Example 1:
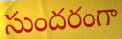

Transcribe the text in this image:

సుందరంగా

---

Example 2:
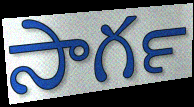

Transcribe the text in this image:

సాగర్‍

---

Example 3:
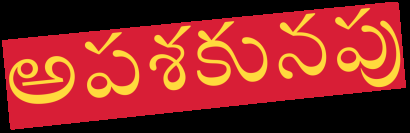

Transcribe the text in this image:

అపశకునపు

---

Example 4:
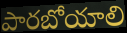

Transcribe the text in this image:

పారబోయాలి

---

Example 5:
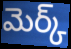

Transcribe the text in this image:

మెర్క్